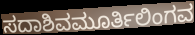
ಸದಾಶಿವಮೂರ್ತಿಲಿಂಗವ